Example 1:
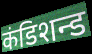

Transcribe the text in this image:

कंडिशन्ड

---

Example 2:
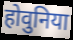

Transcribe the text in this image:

होवुनिया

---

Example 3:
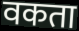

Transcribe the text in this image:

वकता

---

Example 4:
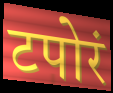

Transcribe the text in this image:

टपोरं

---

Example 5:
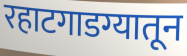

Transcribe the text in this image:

रहाटगाडग्यातून